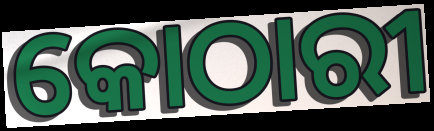
କୋଠାରୀ